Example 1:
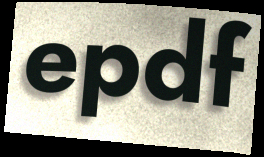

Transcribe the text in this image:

epdf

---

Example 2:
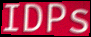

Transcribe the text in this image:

IDPs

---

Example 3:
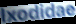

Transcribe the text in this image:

Ixodidae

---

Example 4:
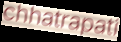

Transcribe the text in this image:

chhatrapati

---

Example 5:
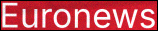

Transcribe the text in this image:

Euronews